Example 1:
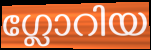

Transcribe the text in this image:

ഗ്ലോറിയ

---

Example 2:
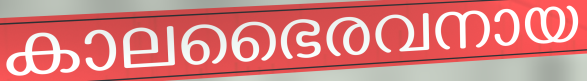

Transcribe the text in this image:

കാലഭൈരവനായ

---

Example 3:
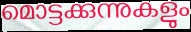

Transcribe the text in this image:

മൊട്ടക്കുന്നുകളും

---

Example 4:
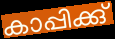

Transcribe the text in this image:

കാപ്പിക്കു്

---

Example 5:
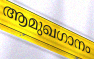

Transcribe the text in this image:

ആമുഖഗാനം